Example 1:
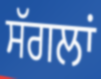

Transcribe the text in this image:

ਸੱਗਲਾਂ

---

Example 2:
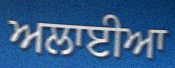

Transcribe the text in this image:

ਅਲਾਈਆ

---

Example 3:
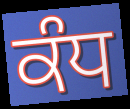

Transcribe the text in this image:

ਕੰਧ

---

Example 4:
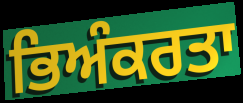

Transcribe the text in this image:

ਭਿਅੰਕਰਤਾ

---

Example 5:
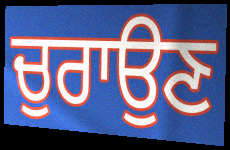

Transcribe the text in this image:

ਚੁਰਾਉਣ